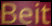
Beit